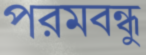
পরমবন্ধু